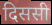
दिससी